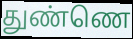
துண்ணெ